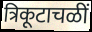
त्रिकूटाचळीं